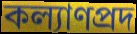
কল্যাণপ্রদ